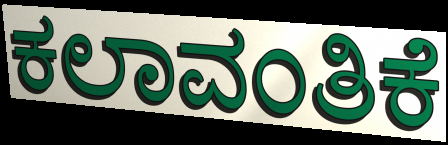
ಕಲಾವಂತಿಕೆ